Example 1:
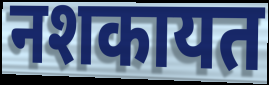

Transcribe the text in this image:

नशकायत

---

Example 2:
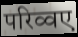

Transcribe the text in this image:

परिव्वए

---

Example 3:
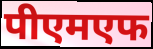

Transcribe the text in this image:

पीएमएफ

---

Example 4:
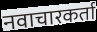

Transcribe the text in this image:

नवाचारकर्ता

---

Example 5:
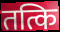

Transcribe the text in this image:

तत्कि